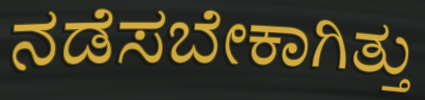
ನಡೆಸಬೇಕಾಗಿತ್ತು